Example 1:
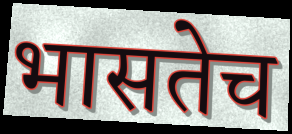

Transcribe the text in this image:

भासतेच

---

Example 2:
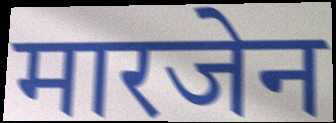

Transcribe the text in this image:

मारजेन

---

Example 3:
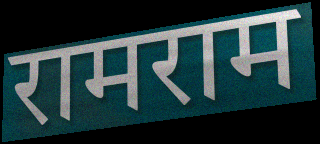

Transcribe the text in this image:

रामराम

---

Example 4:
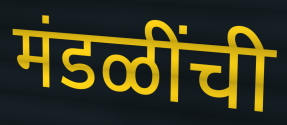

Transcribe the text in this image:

मंडळींची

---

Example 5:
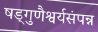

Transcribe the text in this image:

षड्‌गुणैश्वर्यसंपन्न